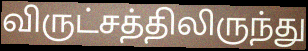
விருட்சத்திலிருந்து